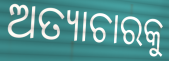
ଅତ୍ୟାଚାରକୁ